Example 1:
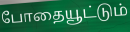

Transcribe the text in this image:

போதையூட்டும்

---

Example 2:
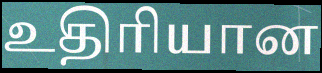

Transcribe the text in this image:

உதிரியான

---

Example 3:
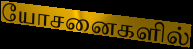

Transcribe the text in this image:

யோசனைகளில்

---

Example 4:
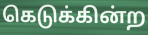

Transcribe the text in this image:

கெடுக்கின்ற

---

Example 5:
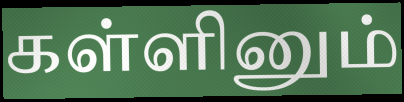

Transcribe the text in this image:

கள்ளினும்